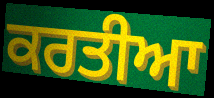
ਕਰਤੀਆ